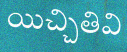
యిచ్చితివి